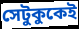
সেটুকুকেই